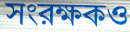
সংরক্ষকও